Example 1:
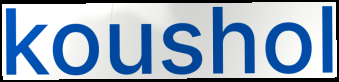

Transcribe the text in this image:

koushol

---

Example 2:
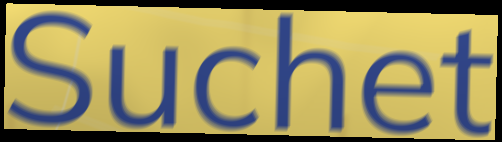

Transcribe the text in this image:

Suchet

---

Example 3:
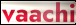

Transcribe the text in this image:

vaachi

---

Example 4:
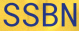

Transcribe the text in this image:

SSBN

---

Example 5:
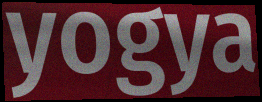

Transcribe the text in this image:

yogya